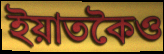
ইয়াতকৈও